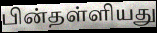
பின்தள்ளியது